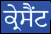
ਕ੍ਰੇਸੈਂਟ